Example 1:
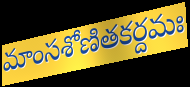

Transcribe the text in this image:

మాంసశోణితకర్దమః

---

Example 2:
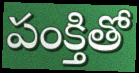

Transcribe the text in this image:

పంక్తితో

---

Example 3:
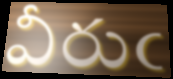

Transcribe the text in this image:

వీరుఁ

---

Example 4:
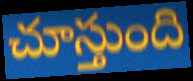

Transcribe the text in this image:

చూస్తుంది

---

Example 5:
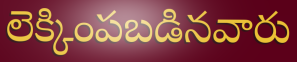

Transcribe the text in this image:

లెక్కింపబడినవారు